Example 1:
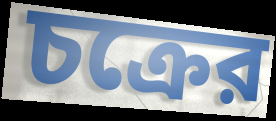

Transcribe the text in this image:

চক্রের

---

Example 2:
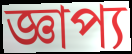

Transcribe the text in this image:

জ্ঞাপ্য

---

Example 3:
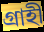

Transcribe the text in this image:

গ্রাহী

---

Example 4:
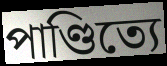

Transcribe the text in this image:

পাণ্ডিত্যে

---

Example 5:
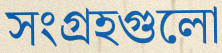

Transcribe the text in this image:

সংগ্রহগুলো